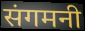
संगमनी